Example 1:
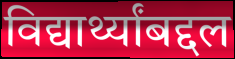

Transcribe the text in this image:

विद्यार्थ्यांबद्दल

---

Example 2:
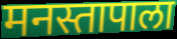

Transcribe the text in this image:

मनस्तापाला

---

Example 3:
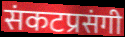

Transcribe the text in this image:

संकटप्रसंगी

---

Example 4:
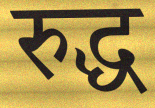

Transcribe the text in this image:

रुद्ध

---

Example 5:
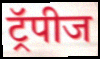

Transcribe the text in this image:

ट्रॅपीज